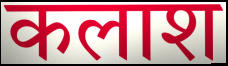
कलाश